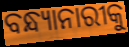
ବନ୍ଧ୍ୟାନାରୀକୁ